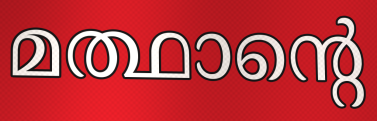
മത്ഥാന്റെ